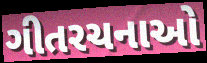
ગીતરચનાઓ